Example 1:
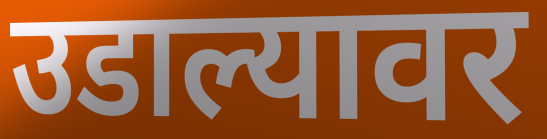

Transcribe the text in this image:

उडाल्यावर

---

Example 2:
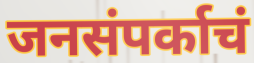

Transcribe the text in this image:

जनसंपर्काचं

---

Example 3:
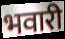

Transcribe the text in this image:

भवारी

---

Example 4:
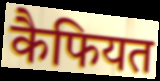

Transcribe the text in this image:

कैफियत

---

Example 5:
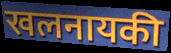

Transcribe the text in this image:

खलनायकी